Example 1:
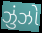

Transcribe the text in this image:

ઝુંઝો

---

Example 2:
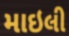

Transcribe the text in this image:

માઇલી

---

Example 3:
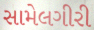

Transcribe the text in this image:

સામેલગીરી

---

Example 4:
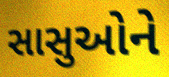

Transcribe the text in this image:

સાસુઓને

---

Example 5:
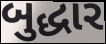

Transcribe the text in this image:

બુદ્ધાર